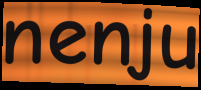
nenju